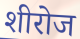
शीरोज